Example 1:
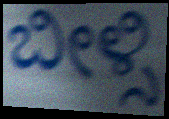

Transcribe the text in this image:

ಬೀಳ್ಸಿ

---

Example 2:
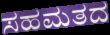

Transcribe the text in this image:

ಸಹಮತದ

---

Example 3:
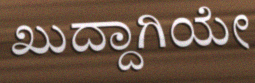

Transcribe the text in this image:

ಖುದ್ದಾಗಿಯೇ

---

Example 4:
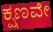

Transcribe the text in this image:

ಕ್ಷಣವೇ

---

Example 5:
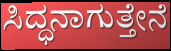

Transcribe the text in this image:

ಸಿದ್ಧನಾಗುತ್ತೇನೆ